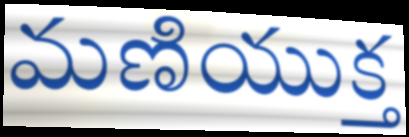
మణియుక్త